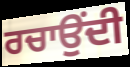
ਰਚਾਉਂਦੀ